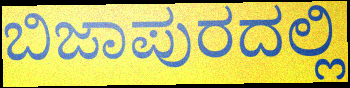
ಬಿಜಾಪುರದಲ್ಲಿ